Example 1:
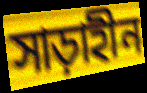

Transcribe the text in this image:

সাড়াহীন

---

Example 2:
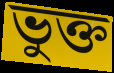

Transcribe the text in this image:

ভুক্ত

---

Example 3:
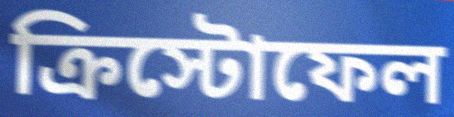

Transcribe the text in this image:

ক্রিস্টোফেল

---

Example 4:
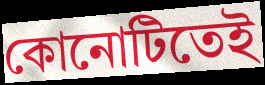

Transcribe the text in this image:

কোনোটিতেই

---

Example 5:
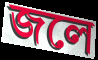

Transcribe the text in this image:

জলে